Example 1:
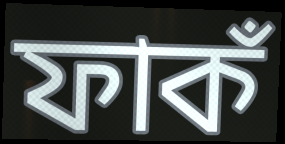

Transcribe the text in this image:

ফাকঁ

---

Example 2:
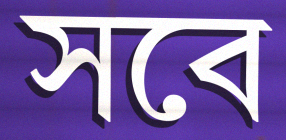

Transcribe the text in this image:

সবে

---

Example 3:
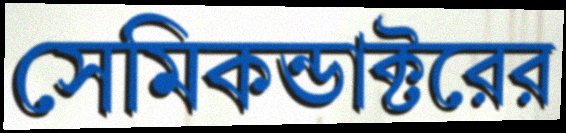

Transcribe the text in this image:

সেমিকন্ডাক্টরের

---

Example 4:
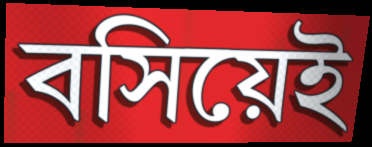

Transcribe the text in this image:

বসিয়েই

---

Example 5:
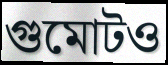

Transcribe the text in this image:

গুমোটও